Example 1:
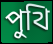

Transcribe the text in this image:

পুথি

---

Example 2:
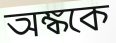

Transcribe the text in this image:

অঙ্ককে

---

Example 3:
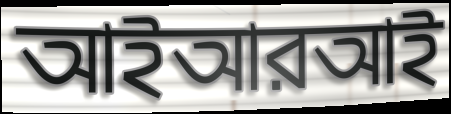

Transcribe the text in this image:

আইআরআই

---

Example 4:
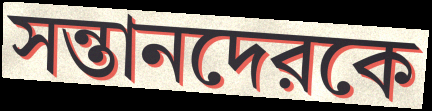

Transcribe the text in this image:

সন্তানদেরকে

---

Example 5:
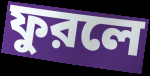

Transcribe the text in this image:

ফুরলে